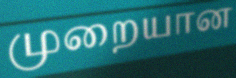
முறையான